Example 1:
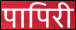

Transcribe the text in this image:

पापिरी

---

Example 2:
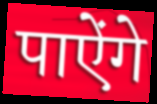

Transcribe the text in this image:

पाऐंगे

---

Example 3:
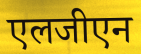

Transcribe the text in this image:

एलजीएन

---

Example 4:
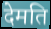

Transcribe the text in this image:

देमति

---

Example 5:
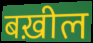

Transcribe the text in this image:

बख़ील